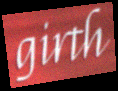
girth